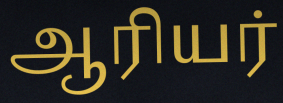
ஆரியர்